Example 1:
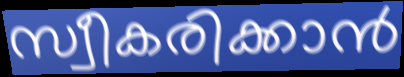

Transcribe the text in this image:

സ്വീകരിക്കാൻ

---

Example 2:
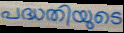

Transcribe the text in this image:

പദ്ധതിയുടെ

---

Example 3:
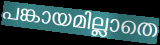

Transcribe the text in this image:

പങ്കായമില്ലാതെ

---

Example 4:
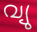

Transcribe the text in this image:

വ്യു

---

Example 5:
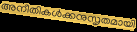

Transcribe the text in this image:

അനീതികൾക്കനുസൃതമായി